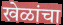
खेळांचा